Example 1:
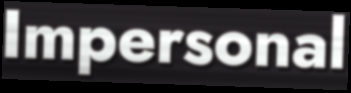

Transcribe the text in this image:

Impersonal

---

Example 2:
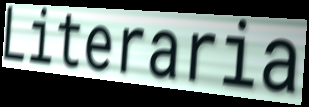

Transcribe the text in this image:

Literaria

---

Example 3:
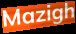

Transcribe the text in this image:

Mazigh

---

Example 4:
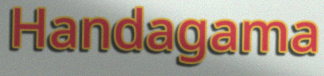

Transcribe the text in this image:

Handagama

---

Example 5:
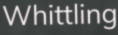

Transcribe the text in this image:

Whittling